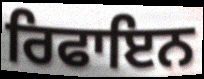
ਰਿਫਾਇਨ